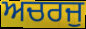
ਅਚਰਜੁ